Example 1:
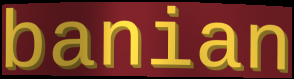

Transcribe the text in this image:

banian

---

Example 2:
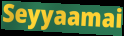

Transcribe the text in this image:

Seyyaamai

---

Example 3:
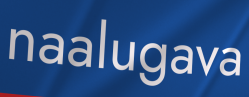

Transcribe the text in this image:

naalugava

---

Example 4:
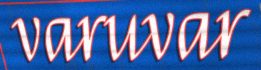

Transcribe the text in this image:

varuvar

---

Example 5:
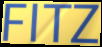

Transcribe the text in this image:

FITZ